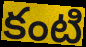
కంటి